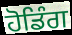
ਹੋਡਿੰਗ